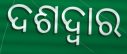
ଦଶଦ୍ୱାର